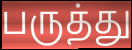
பருத்து